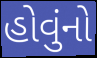
હોવુંનો